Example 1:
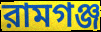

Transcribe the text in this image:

রামগঞ্জ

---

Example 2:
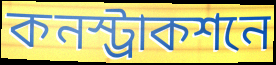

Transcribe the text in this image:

কনস্ট্রাকশনে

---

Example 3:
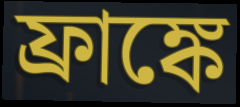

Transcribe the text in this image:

ফ্রাঙ্কে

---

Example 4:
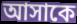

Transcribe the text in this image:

আসাকে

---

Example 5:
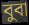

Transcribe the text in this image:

বুবা